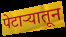
पेटाऱ्यातून